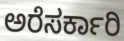
ಅರೆಸರ್ಕಾರಿ